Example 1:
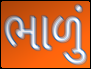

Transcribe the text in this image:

ભાળું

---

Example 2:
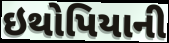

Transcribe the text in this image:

ઇથોપિયાની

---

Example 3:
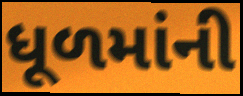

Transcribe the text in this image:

ધૂળમાંની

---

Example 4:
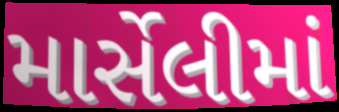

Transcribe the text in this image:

માર્સેલીમાં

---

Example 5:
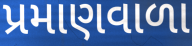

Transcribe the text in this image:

પ્રમાણવાળા